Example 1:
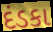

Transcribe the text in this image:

દંડકા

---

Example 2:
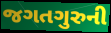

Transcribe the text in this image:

જગતગુરુની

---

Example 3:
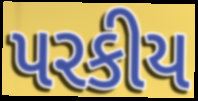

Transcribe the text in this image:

પરકીય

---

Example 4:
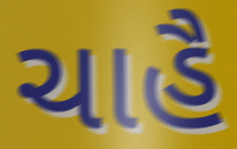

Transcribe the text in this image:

ચાહૈ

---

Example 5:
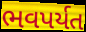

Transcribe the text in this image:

ભવપર્યત